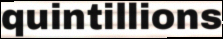
quintillions